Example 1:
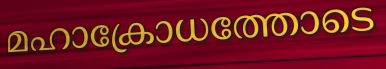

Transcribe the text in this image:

മഹാക്രോധത്തോടെ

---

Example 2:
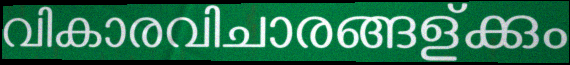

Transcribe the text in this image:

വികാരവിചാരങ്ങള്ക്കും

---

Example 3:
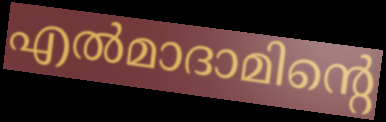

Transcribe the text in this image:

എൽമാദാമിന്റെ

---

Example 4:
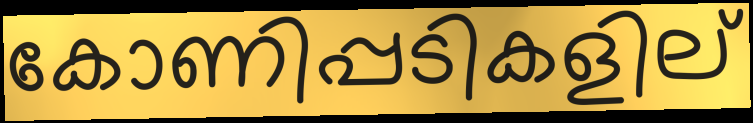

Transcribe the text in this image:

കോണിപ്പടികളില്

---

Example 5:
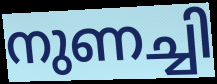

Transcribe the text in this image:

നുണച്ചി